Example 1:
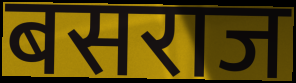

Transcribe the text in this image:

बसराज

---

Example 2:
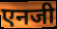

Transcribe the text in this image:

एनजी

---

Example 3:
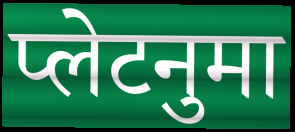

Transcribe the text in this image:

प्लेटनुमा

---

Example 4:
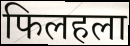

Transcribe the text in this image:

फिलहला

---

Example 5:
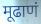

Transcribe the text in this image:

मूढाणं